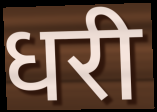
धरी